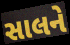
સાલને